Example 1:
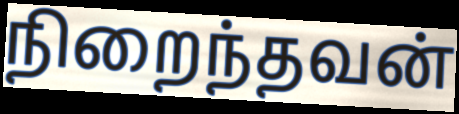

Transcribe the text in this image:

நிறைந்தவன்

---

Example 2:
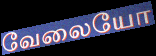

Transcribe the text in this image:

வேலையோ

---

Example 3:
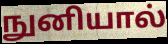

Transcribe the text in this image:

நுனியால்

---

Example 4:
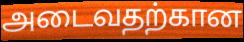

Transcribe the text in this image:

அடைவதற்கான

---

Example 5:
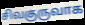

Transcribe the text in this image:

சிவகுருவாக